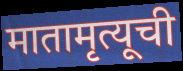
मातामृत्यूची